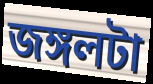
জঙ্গলটা